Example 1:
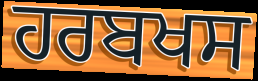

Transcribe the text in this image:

ਹਰਬਖਸ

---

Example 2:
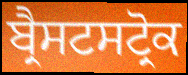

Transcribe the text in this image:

ਬ੍ਰੈਸਟਸਟ੍ਰੋਕ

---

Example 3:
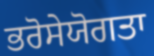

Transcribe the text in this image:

ਭਰੋਸੇਯੋਗਤਾ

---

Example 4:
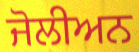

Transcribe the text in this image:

ਜੋਲੀਅਨ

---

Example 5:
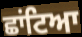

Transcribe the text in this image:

ਛਾਂਟਿਆ